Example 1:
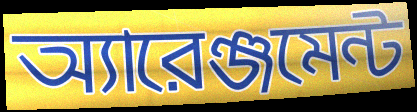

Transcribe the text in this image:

অ্যারেঞ্জমেন্ট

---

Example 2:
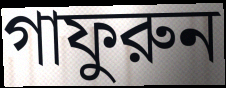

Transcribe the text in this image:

গাফুরুন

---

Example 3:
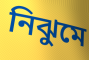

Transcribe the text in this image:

নিঝুমে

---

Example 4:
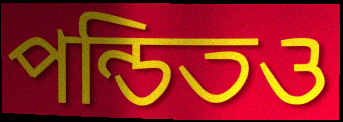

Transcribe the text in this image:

পন্ডিতও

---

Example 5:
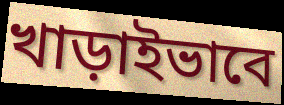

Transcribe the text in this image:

খাড়াইভাবে